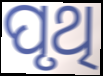
ପୃଥି